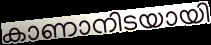
കാണാനിടയായി